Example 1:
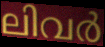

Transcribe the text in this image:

ലിവർ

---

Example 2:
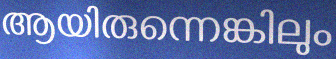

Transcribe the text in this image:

ആയിരുന്നെങ്കിലും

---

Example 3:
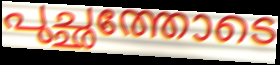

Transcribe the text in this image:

പുച്ഛത്തോടെ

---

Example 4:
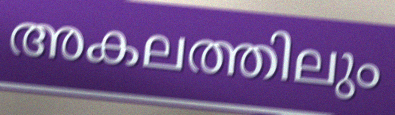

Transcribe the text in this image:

അകലത്തിലും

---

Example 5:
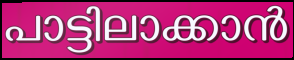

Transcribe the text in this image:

പാട്ടിലാക്കാൻ